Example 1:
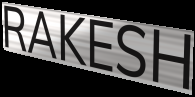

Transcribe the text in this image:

RAKESH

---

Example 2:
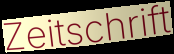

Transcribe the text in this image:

Zeitschrift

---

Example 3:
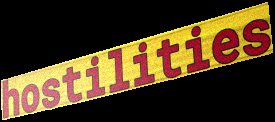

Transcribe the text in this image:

hostilities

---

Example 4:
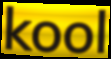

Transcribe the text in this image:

kool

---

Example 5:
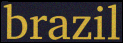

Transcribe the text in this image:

brazil